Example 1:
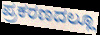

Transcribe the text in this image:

ಪ್ರಕರಣದಲ್ಲೂ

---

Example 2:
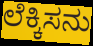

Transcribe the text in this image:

ಲೆಕ್ಕಿಸನು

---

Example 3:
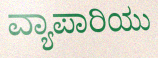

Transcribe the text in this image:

ವ್ಯಾಪಾರಿಯು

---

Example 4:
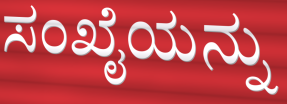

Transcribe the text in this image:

ಸಂಖೈಯನ್ನು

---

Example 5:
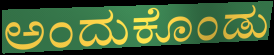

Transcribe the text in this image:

ಅಂದುಕೊಂಡು